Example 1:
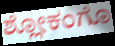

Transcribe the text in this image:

ಶ್ಲೋಕಂಗೊ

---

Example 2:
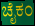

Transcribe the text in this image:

ಚೈಕಂ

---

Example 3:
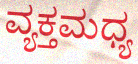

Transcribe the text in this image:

ವ್ಯಕ್ತಮಧ್ಯ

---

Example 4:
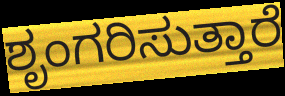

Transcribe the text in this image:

ಶೃಂಗರಿಸುತ್ತಾರೆ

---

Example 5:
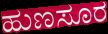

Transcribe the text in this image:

ಹುಣಸೂರ